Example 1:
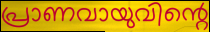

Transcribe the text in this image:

പ്രാണവായുവിന്റെ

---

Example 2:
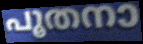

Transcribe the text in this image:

പൂതനാ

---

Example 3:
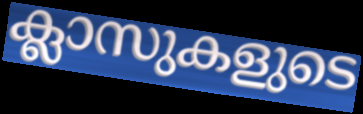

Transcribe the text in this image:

ക്ലാസുകളുടെ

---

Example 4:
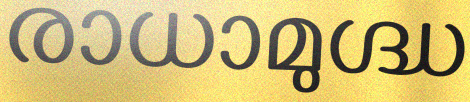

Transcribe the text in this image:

രാധാമുഗ്ദ്ധ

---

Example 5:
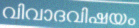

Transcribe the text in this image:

വിവാദവിഷയം